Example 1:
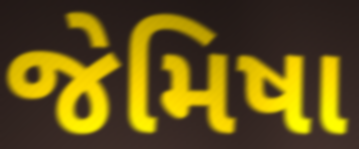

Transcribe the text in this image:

જેમિષા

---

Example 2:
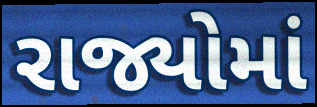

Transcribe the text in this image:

રાજ્યોમાં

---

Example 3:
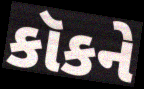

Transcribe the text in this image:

કૉકને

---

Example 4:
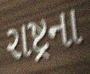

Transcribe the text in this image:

રાષ્ટ્રના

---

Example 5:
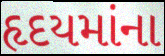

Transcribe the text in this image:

હૃદયમાંના